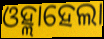
ଓହ୍ଲାହେଲା